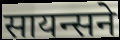
सायन्सने